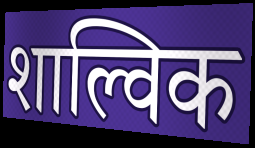
शाल्विक